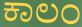
ಕಾಲಂ